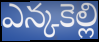
ఎన్కకెల్లి